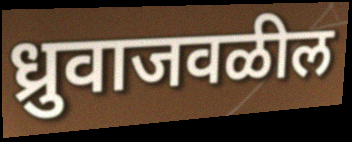
ध्रुवाजवळील